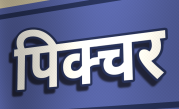
पिक्चर